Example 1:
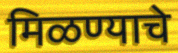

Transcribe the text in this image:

मिळण्याचे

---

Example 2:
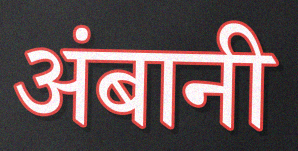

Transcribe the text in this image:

अंबानी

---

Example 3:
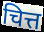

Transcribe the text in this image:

चित्त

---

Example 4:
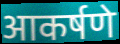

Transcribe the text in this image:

आकर्षणे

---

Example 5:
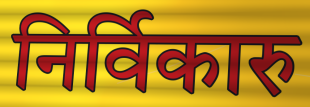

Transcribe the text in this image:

निर्विकारु